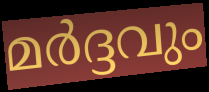
മർദ്ദവും